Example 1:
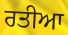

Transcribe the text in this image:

ਰਤੀਆ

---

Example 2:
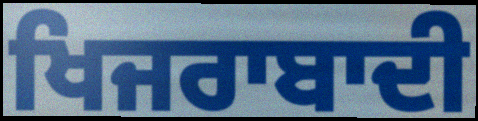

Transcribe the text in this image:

ਖਿਜਰਾਬਾਦੀ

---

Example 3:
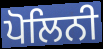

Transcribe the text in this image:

ਪੋਲਿਨੀ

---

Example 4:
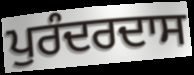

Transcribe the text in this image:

ਪੁਰੰਦਰਦਾਸ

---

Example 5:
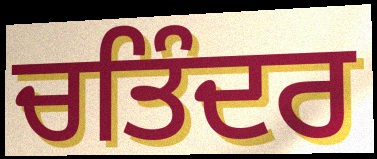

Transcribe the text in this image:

ਚਤਿੰਦਰ